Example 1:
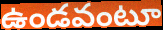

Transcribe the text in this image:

ఉండవంటూ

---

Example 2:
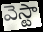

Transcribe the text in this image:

వెస్టా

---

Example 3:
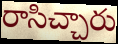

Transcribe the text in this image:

రాసిచ్చారు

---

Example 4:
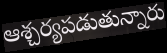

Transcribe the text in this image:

ఆశ్చర్యపడుతున్నారు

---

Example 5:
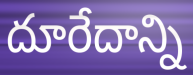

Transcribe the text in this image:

దూరేదాన్ని